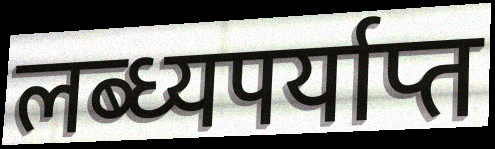
लब्ध्यपर्याप्त